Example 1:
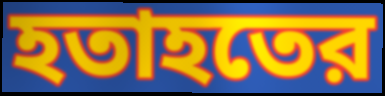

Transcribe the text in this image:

হতাহতের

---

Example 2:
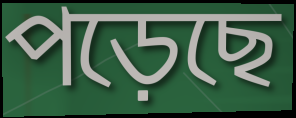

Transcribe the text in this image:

পড়েছে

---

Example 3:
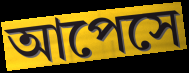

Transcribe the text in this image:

আপেসে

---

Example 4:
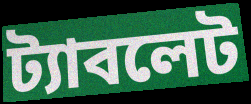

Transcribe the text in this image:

ট্যাবলেট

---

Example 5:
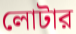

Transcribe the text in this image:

লোটার